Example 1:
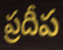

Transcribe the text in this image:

ప్రదీప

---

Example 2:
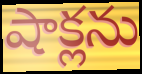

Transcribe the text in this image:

షాక్లను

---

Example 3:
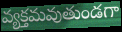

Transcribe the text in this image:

వ్యక్తమవుతుండగా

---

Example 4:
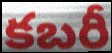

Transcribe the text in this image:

కబరీ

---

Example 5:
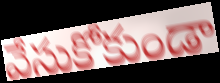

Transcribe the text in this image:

వేసుకోకుండా